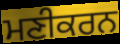
ਮਣੀਕਰਨ